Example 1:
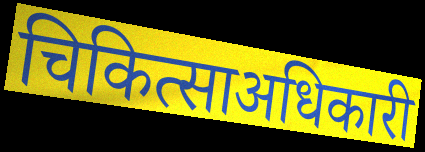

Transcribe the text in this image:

चिकित्साअधिकारी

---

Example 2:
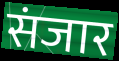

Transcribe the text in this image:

संजार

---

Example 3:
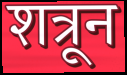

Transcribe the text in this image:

शत्रून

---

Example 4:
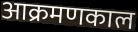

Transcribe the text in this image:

आक्रमणकाल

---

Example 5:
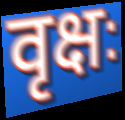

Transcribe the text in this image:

वृक्षः